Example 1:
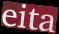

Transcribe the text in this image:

eita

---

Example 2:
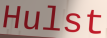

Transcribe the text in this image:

Hulst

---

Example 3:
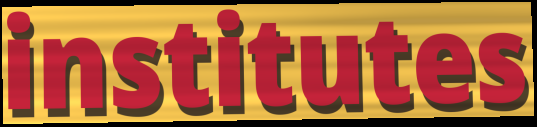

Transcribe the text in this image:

institutes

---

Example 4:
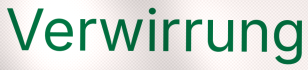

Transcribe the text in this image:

Verwirrung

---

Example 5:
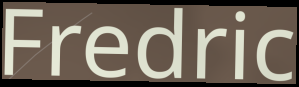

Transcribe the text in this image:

Fredric